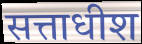
सत्ताधीश